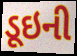
ડૂઇની